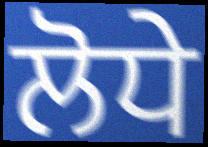
ਲੋਧੇ